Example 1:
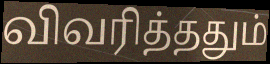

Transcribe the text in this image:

விவரித்ததும்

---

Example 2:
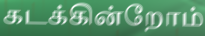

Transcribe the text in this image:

கடக்கின்றோம்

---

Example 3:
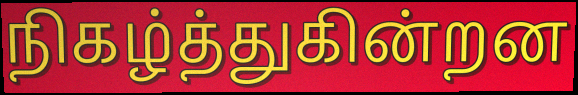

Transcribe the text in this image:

நிகழ்த்துகின்றன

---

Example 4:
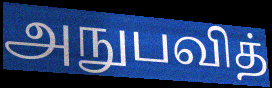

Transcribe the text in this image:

அநுபவித்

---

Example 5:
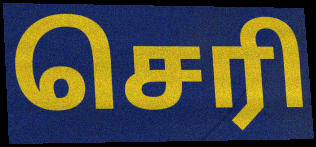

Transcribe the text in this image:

செரி